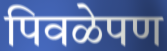
पिवळेपण